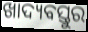
ଖାଦ୍ୟବସ୍ତୁର